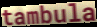
tambula